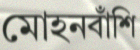
মোহনবাঁশি